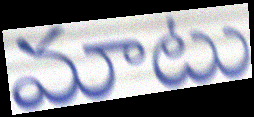
మాటు